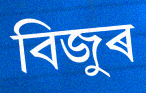
বিজুৰ